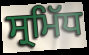
ਸ੍ਰਮਿੱਧ